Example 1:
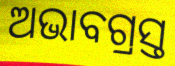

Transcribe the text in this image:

ଅଭାବଗ୍ରସ୍ତ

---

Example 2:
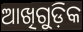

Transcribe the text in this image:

ଆଖିଗୁଡ଼ିକ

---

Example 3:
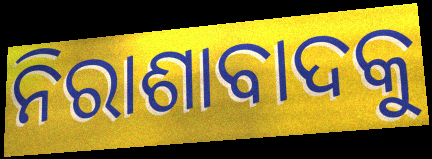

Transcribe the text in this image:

ନିରାଶାବାଦକୁ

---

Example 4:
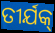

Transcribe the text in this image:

ତୀର୍ଯକ୍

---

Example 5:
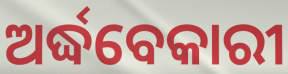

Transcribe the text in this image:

ଅର୍ଦ୍ଧବେକାରୀ